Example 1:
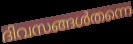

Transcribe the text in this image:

ദിവസങ്ങൾതന്നെ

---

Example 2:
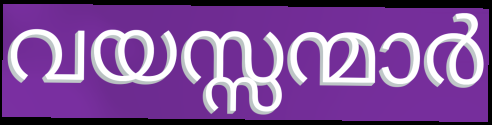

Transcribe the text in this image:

വയസ്സന്മാർ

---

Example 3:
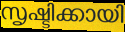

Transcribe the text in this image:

സൃഷ്ടിക്കായി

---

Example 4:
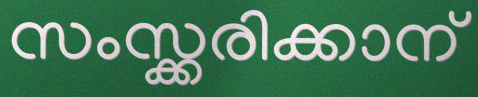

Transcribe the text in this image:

സംസ്ക്കരിക്കാന്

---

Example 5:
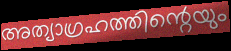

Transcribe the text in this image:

അത്യാഗ്രഹത്തിന്റെയും